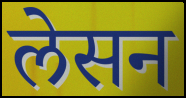
लेसन